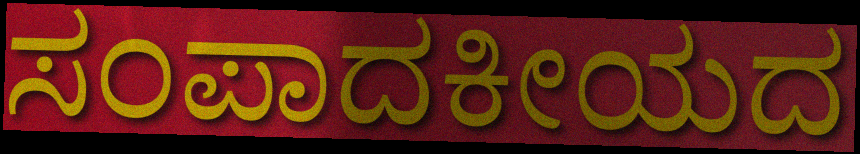
ಸಂಪಾದಕೀಯದ